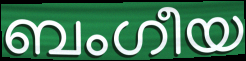
ബംഗീയ